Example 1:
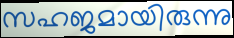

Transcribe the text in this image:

സഹജമായിരുന്നു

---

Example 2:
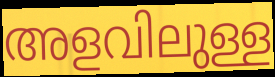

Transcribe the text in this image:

അളവിലുള്ള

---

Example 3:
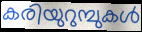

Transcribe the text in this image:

കരിയുറുമ്പുകൾ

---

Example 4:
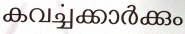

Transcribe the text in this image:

കവൎച്ചക്കാർക്കും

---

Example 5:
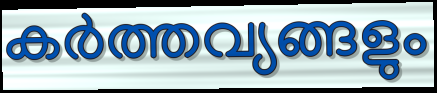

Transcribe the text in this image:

കർത്തവ്യങ്ങളും